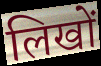
लिखों